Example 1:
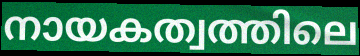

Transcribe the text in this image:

നായകത്വത്തിലെ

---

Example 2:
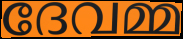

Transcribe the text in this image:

ദേവമ്മ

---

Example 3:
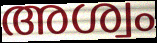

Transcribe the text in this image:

അശ്വം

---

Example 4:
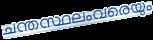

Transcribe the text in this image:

ചന്തസ്ഥലംവരെയും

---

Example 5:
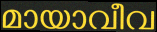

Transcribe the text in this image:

മായാവീവ